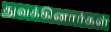
துவக்கினார்கள்